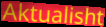
Aktualisht